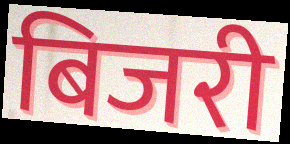
बिजरी